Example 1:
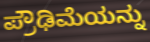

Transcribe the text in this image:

ಪ್ರೌಢಿಮೆಯನ್ನು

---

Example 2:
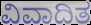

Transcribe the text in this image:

ವಿವಾದಿತ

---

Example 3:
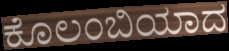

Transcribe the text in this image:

ಕೊಲಂಬಿಯಾದ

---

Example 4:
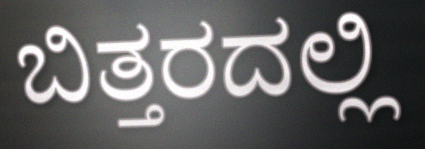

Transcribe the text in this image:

ಬಿತ್ತರದಲ್ಲಿ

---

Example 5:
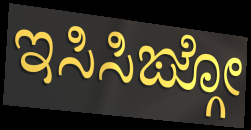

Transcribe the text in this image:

ಇಸಿಸಿಙ್ಗೋ